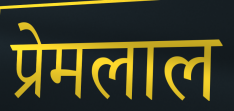
प्रेमलाल